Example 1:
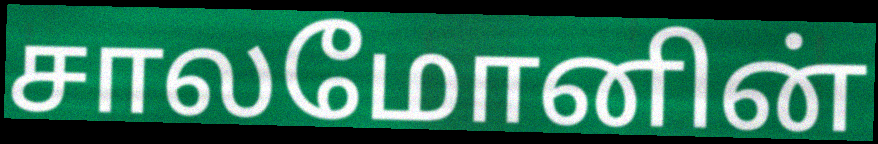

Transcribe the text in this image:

சாலமோனின்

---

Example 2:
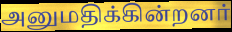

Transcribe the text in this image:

அனுமதிக்கின்றனர்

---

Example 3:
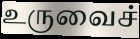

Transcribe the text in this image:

உருவைச்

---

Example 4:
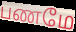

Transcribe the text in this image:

பணமே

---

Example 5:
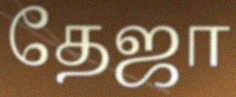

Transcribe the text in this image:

தேஜா